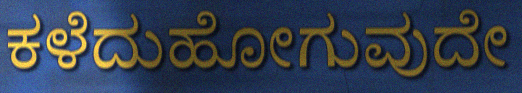
ಕಳೆದುಹೋಗುವುದೇ